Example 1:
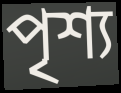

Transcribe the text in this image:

পৃশ্য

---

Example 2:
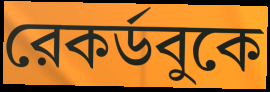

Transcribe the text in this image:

রেকর্ডবুকে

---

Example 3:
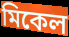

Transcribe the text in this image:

মিকেল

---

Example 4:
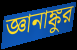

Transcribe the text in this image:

জ্ঞানাঙ্কুর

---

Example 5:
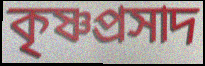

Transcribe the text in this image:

কৃষ্ণপ্রসাদ